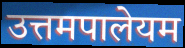
उत्तमपालेयम